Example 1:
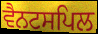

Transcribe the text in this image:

ਵੈਨਟਸਪਿਲ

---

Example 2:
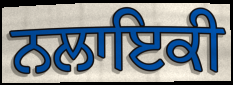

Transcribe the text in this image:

ਨਲਾਇਕੀ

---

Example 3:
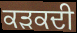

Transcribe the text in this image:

ਕੜਕਦੀ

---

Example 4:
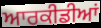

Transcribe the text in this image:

ਆਰਕੀਡੀਆਂ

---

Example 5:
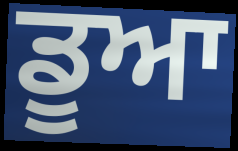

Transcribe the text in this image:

ਡੂਆ